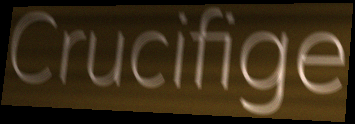
Crucifige